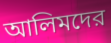
আলিমদের